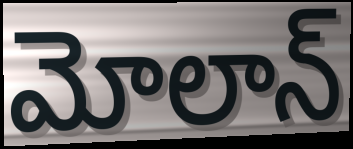
మోలాన్